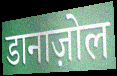
डानाज़ोल